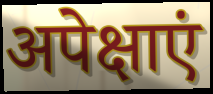
अपेक्षाएं